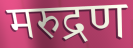
मरुद्रण